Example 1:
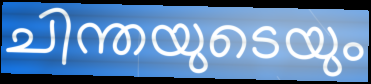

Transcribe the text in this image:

ചിന്തയുടെയും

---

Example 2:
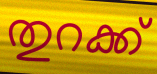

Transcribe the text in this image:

തുറക്ക്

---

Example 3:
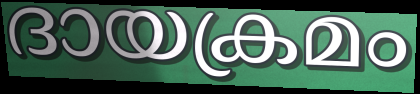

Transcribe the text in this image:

ദായക്രമം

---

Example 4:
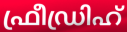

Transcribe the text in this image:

ഫ്രീഡ്രിഹ്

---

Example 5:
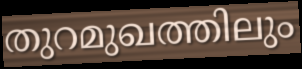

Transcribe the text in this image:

തുറമുഖത്തിലും